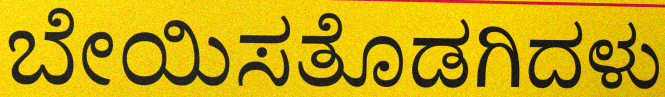
ಬೇಯಿಸತೊಡಗಿದಳು